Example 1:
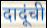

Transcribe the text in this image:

दादूंची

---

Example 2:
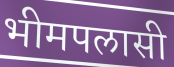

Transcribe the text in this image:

भीमपलासी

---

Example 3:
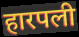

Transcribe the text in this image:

हारपली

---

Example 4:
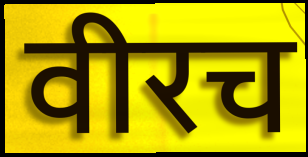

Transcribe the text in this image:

वीरच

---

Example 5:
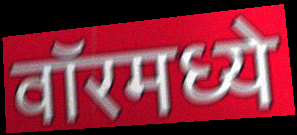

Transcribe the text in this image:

वॉरमध्ये